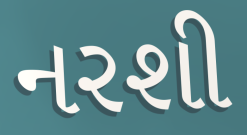
નરશી